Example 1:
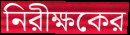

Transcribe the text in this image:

নিরীক্ষকের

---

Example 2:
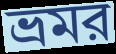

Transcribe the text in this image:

ভ্রমর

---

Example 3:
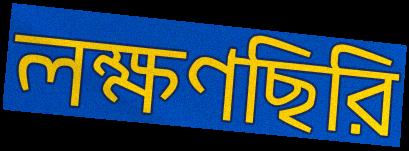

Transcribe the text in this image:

লক্ষণছিরি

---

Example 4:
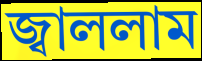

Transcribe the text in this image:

জ্বাললাম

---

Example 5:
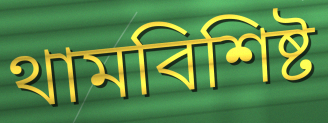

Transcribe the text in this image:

থামবিশিষ্ট